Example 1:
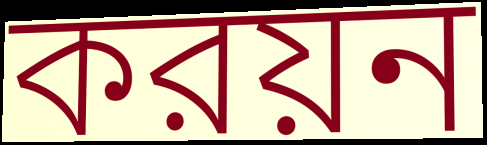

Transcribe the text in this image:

করয়ন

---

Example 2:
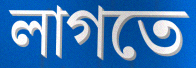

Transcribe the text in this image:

লাগতে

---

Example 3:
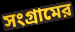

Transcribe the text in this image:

সংগ্রামের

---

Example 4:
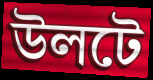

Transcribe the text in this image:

উলটে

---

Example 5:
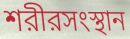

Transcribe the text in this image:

শরীরসংস্থান